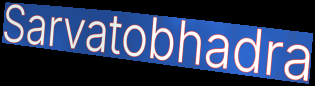
Sarvatobhadra